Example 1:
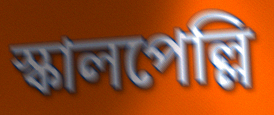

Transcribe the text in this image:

স্কালপেল্লি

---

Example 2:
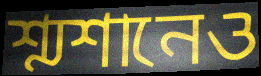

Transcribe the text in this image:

শ্মশানেও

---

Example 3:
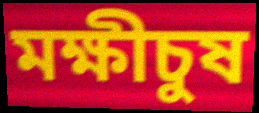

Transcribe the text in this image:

মক্ষীচুষ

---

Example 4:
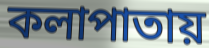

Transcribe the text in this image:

কলাপাতায়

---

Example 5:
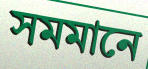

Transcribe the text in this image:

সমমানে